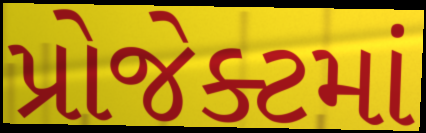
પ્રોજેક્ટમાં